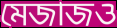
মেজাজও